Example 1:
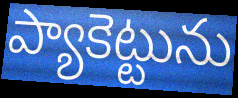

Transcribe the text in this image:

ప్యాకెట్టును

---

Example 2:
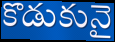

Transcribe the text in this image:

కొడుకునై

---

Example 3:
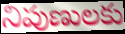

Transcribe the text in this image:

నిపుణులకు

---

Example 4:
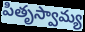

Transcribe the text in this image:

పితృస్వామ్య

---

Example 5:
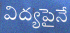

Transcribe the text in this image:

విద్యపైనే